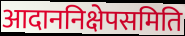
आदाननिक्षेपसमिति